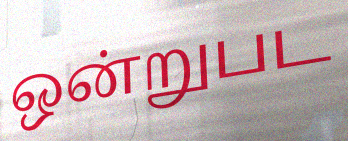
ஒன்றுபட